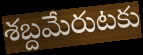
శబ్దమేరుటకు